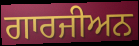
ਗਾਰਜੀਅਨ